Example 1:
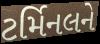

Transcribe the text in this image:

ટર્મિનલને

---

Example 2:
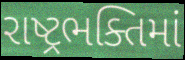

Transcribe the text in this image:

રાષ્ટ્રભક્તિમાં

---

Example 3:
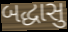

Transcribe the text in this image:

બદ્ધાસુ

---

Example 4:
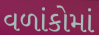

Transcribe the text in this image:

વળાંકોમાં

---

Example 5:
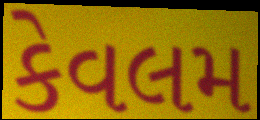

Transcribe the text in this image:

કેવલમ